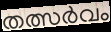
തത്സർവം